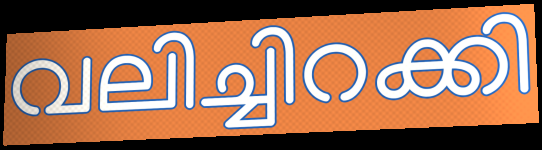
വലിച്ചിറക്കി